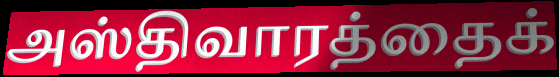
அஸ்திவாரத்தைக்